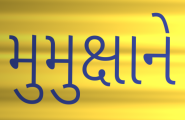
મુમુક્ષાને